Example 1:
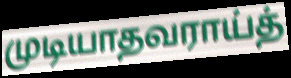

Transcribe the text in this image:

முடியாதவராய்த்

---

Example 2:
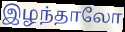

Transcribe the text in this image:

இழந்தாலோ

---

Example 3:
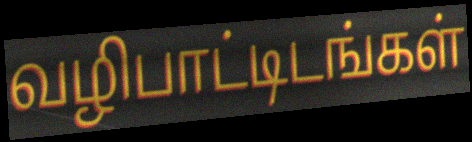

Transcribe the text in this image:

வழிபாட்டிடங்கள்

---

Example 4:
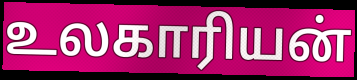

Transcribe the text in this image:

உலகாரியன்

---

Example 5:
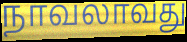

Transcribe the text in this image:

நாவலாவது